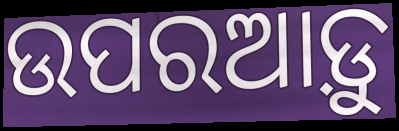
ଉପରଆଡ଼ୁ